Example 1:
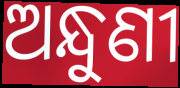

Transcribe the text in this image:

ଅନ୍ଧୁଣୀ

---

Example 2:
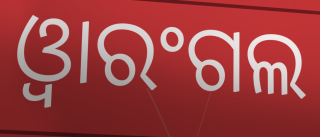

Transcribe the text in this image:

ଓ୍ୱାରଂଗଲ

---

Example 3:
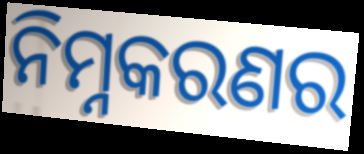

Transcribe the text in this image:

ନିମ୍ନକରଣର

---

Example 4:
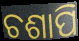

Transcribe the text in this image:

ଚଶାପି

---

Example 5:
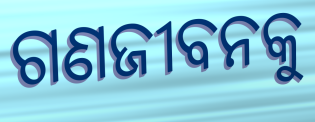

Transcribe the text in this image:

ଗଣଜୀବନକୁ